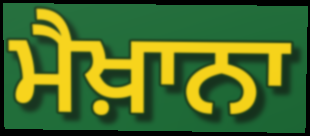
ਮੈਖ਼ਾਨਾ